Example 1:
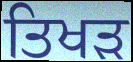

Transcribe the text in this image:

ਤਿਖੜ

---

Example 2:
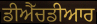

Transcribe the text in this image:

ਡੀਐੱਚਡੀਆਰ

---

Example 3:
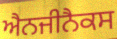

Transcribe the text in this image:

ਐਨਜੀਨੈਕਸ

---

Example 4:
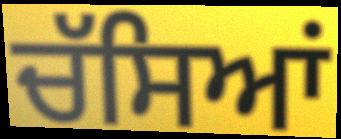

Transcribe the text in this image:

ਚੱਸਿਆਂ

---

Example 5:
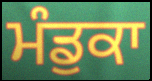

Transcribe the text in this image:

ਮੰਡੁਕਾ